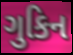
ગુકિન